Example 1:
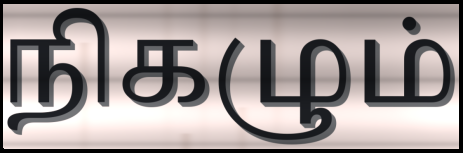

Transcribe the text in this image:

நிகழும்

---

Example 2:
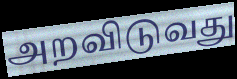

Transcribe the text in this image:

அறவிடுவது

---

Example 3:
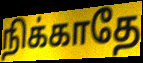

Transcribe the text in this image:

நிக்காதே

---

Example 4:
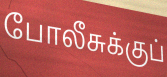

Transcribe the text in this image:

போலீசுக்குப்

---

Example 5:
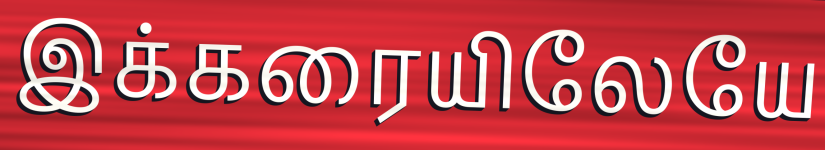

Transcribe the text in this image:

இக்கரையிலேயே